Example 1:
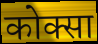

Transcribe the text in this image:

कोक्सा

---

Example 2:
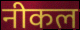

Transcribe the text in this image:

नीकल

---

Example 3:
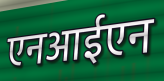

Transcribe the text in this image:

एनआईएन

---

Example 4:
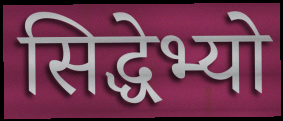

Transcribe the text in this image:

सिद्धेभ्यो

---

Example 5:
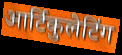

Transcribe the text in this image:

आर्टिकुलेटिंग